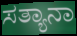
ಸತ್ಯಾನಾ